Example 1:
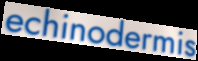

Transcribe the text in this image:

echinodermis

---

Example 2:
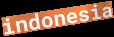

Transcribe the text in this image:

indonesia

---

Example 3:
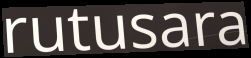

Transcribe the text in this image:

rutusara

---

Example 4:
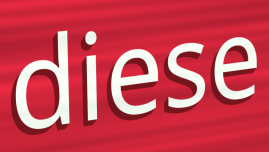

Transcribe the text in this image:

diese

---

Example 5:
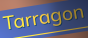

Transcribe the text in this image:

Tarragon